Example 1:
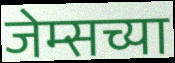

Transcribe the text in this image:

जेम्सच्या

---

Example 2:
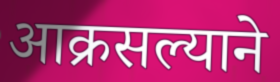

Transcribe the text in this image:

आक्रसल्याने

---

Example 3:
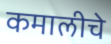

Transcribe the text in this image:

कमालीचे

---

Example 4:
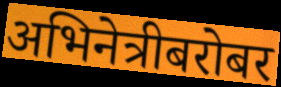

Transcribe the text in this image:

अभिनेत्रीबरोबर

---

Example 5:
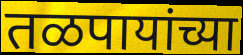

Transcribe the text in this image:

तळपायांच्या